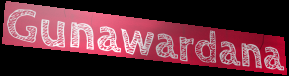
Gunawardana